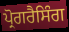
ਪ੍ਰੋਗਰੈਸਿੰਗ